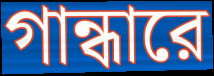
গান্ধারে